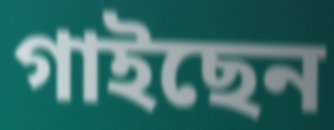
গাইছেন